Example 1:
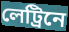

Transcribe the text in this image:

লেট্রিনে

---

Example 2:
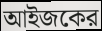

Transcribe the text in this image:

আইজকের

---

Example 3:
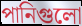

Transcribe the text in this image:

পানিগুলো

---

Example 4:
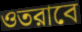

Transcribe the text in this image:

ওতরাবে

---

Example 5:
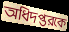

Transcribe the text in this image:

অধিদপ্তরকে